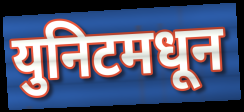
युनिटमधून